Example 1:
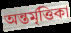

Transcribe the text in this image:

অন্তর্মৃত্তিকা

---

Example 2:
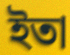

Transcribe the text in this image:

ইতা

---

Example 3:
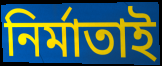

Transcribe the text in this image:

নির্মাতাই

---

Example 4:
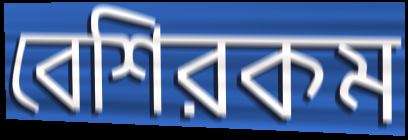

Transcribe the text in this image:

বেশিরকম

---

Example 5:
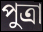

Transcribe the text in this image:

পুত্রা